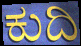
ಕುದಿ